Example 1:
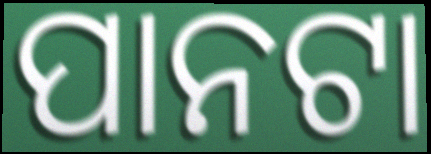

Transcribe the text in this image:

ପାନଟା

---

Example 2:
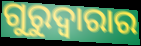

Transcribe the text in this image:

ଗୁରୁଦ୍ୱାରାର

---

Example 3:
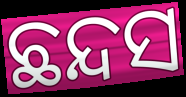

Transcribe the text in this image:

ଛନ୍ଦସ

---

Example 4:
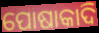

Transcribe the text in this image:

ପୋଷାକାଦି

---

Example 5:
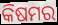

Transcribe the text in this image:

କିଷମର